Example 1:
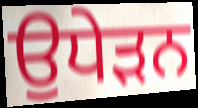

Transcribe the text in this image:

ਉਧੇੜਨ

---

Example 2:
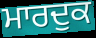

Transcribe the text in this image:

ਮਾਰਦੁਕ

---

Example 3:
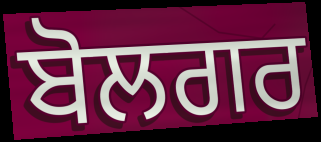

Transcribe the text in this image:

ਬੋਲਗਰ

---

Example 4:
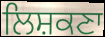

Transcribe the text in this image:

ਲਿਸ਼ਕਣਾ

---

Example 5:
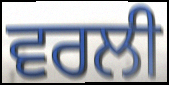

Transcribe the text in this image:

ਵਰਲੀ